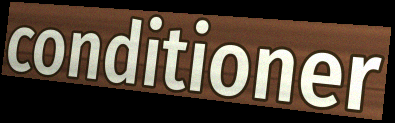
conditioner